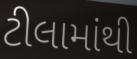
ટીલામાંથી